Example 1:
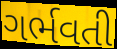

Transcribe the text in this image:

ગર્ભવતી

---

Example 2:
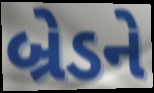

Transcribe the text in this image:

બ્રેડને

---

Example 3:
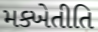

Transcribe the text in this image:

મક્ખેતીતિ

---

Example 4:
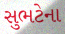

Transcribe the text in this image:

સુભટેના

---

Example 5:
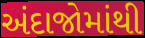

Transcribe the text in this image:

અંદાજોમાંથી